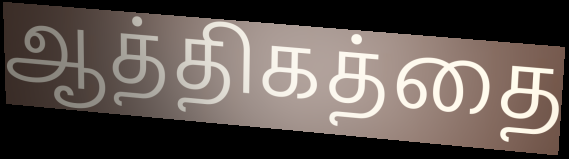
ஆத்திகத்தை